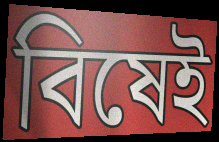
বিষেই